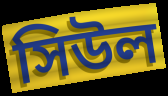
সিউল